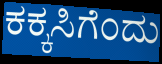
ಕಕ್ಕಸಿಗೆಂದು